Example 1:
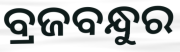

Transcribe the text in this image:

ବ୍ରଜବନ୍ଧୁର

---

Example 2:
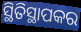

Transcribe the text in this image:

ସ୍ଥିତିସ୍ଥାପକର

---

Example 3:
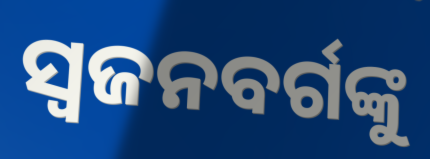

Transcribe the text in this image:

ସ୍ୱଜନବର୍ଗଙ୍କୁ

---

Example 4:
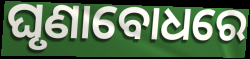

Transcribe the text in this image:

ଘୃଣାବୋଧରେ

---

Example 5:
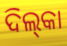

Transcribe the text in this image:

ଦିଲ୍‌କା